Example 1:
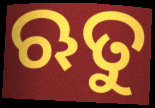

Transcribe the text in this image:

ଋତୁ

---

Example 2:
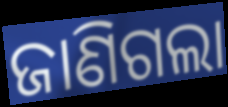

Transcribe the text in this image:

ଜାଣିଗଲା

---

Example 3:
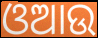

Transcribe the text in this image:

ଓଆଉ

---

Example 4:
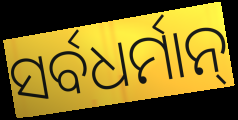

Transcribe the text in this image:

ସର୍ବଧର୍ମାନ୍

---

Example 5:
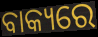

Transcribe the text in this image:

ବାକ୍ୟରେ